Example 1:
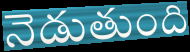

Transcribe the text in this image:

నెడుతుంది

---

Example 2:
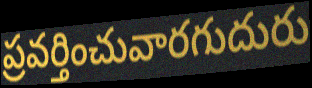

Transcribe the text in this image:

ప్రవర్తించువారగుదురు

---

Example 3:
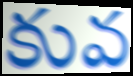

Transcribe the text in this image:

కువ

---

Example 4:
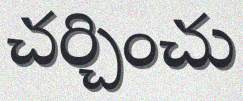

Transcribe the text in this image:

చర్చించు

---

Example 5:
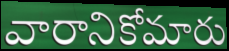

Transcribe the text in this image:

వారానికోమారు